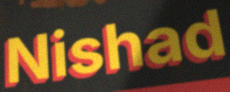
Nishad